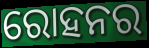
ରୋହନର